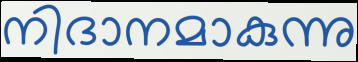
നിദാനമാകുന്നു